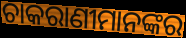
ଚାକରାଣୀମାନଙ୍କର